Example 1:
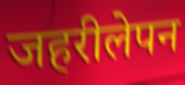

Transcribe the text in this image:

जहरीलेपन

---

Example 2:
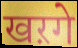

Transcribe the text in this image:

खऱगे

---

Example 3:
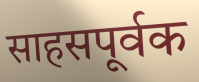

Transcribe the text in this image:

साहसपूर्वक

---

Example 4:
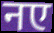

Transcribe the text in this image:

नए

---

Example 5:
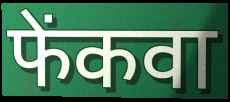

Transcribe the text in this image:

फेंकवा